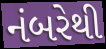
નંબરેથી